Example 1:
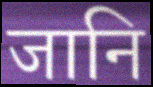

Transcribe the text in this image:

जानि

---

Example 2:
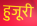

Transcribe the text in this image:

हुजूरी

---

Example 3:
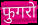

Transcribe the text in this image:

फुगरो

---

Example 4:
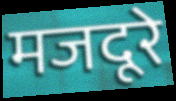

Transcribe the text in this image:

मजदूरे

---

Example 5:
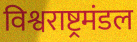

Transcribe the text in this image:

विश्वराष्ट्रमंडल